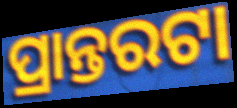
ପ୍ରାନ୍ତରଟା